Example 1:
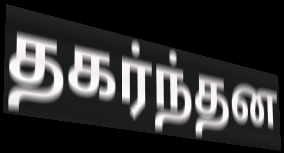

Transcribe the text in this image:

தகர்ந்தன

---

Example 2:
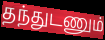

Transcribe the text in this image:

தந்துடணும்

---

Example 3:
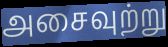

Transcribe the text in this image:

அசைவுற்று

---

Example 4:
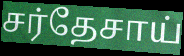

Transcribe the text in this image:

சர்தேசாய்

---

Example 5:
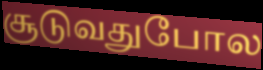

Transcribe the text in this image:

சூடுவதுபோல